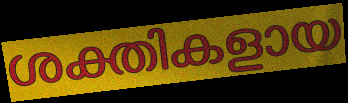
ശക്തികളായ